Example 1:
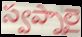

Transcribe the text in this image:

స్వప్నాలై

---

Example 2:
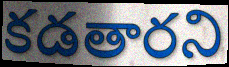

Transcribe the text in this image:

కడతారని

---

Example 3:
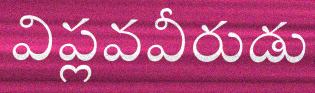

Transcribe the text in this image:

విప్లవవీరుడు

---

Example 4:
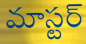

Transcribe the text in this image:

మాస్టర్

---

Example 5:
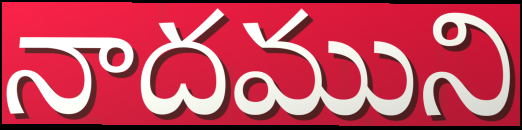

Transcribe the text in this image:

నాదముని